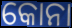
କୋନା